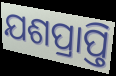
ଯଶପ୍ରାପ୍ତି